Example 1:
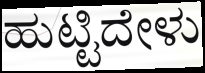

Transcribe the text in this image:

ಹುಟ್ಟಿದೇಳು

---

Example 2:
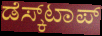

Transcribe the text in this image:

ಡೆಸ್ಕ್‌ಟಾಪ್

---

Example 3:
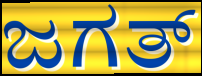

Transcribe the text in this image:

ಜಗತ್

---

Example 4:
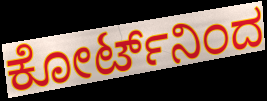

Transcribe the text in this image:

ಕೋರ್ಟ್‌ನಿಂದ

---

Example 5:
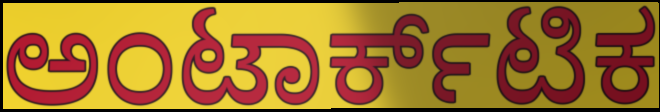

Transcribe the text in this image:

ಅಂಟಾರ್ಕ್‍ಟಿಕ